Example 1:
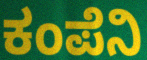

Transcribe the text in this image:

ಕಂಪೆನಿ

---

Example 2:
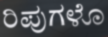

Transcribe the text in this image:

ರಿಪುಗಳೊ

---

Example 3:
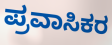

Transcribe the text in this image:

ಪ್ರವಾಸಿಕರ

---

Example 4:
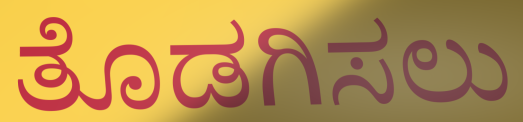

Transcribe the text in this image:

ತೊಡಗಿಸಲು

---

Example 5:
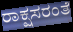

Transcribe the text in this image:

ರಾಕ್ಷಸರಂತೆ